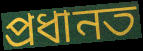
প্রধানত